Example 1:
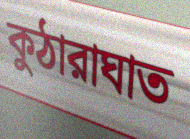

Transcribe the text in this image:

কুঠারাঘাত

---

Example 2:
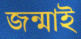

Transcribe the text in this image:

জন্মাই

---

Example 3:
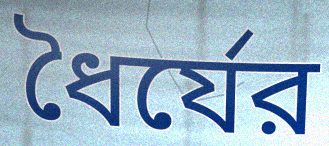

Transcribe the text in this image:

ধৈর্যের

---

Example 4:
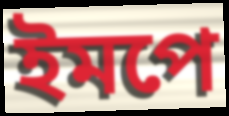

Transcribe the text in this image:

ইমপে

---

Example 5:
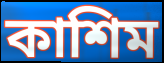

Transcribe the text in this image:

কাশিম